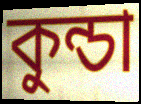
কুন্ডা